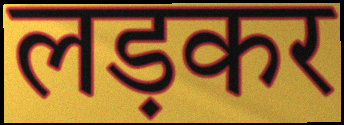
लड़कर